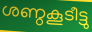
ശണ്ഠകൂടീട്ടു